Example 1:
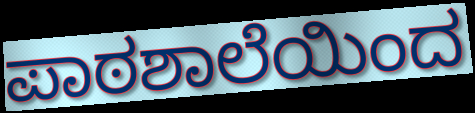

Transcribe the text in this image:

ಪಾಠಶಾಲೆಯಿಂದ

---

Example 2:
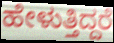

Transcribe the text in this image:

ಹೇಳುತ್ತಿದ್ದರೆ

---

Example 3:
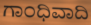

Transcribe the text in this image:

ಗಾಂಧಿವಾದಿ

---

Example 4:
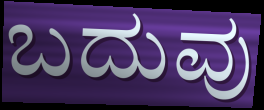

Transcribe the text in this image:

ಬದುವು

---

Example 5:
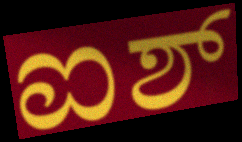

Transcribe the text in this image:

ಐಶ್